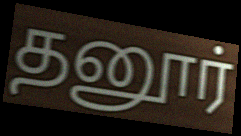
தனூர்